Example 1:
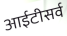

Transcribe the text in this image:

आईटीसर्व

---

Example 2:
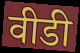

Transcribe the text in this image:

वीडी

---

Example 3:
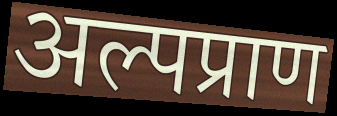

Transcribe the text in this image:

अल्पप्राण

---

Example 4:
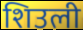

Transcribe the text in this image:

शिउली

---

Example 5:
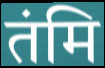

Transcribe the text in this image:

तंमि